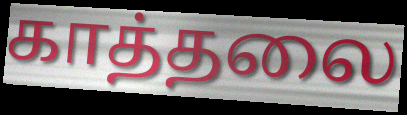
காத்தலை